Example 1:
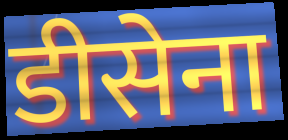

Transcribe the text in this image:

डीसेना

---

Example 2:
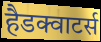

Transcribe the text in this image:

हैडक्वाटर्स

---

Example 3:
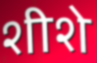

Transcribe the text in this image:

शीशे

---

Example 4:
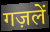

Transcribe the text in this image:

गज़लें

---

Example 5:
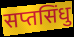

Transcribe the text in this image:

सप्तसिंधु